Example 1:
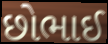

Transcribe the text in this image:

છોભાઈ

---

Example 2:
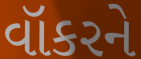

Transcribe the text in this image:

વૉકરને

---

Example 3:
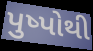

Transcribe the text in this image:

પુષ્પોથી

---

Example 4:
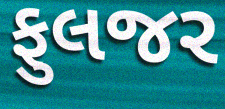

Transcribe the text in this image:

ફુલજર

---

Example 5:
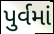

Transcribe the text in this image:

પુર્વમાં